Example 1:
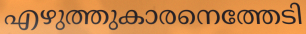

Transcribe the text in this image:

എഴുത്തുകാരനെത്തേടി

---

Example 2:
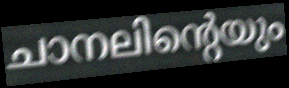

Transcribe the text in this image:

ചാനലിന്റെയും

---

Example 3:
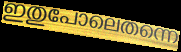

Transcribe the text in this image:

ഇതുപോലെതന്നെ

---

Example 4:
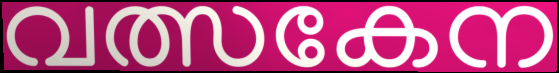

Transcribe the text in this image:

വത്സകേന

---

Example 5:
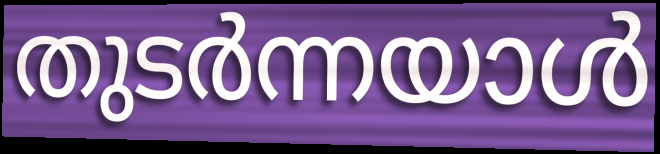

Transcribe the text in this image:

തുടർന്നയാൾ